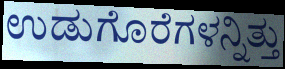
ಉಡುಗೊರೆಗಳನ್ನಿತ್ತು